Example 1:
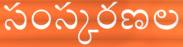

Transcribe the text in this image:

సంస్కరణల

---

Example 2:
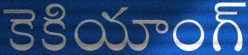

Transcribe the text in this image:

కెకియాంగ్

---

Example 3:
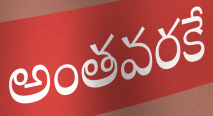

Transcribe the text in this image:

అంతవరకే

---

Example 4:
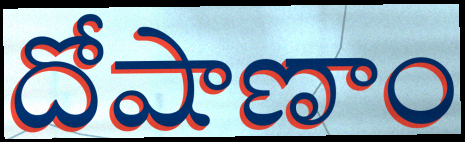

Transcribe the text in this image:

దోషాణాం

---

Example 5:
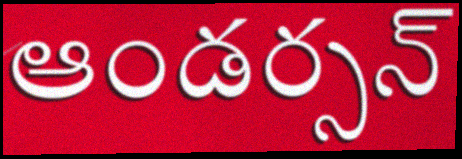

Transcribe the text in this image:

ఆండర్సన్